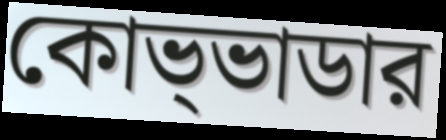
কোভ্ভাডার